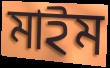
মাইম